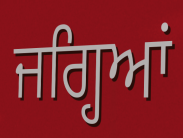
ਜਗ੍ਹਿਆਂ